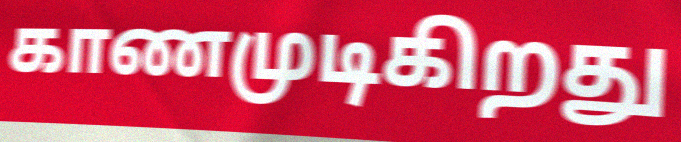
காணமுடிகிறது